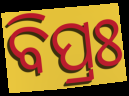
ବିପ୍ରଃ